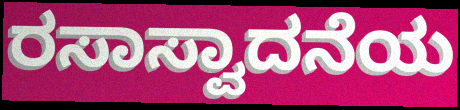
ರಸಾಸ್ವಾದನೆಯ